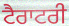
ਟੈਰਾਟਰੀ